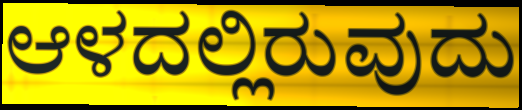
ಆಳದಲ್ಲಿರುವುದು